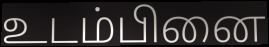
உடம்பினை